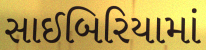
સાઈબિરિયામાં